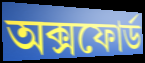
অক্সফোৰ্ড